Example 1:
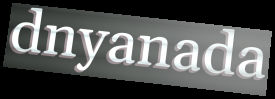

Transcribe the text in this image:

dnyanada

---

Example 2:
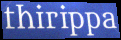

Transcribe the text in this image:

thirippa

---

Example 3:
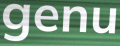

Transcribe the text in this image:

genu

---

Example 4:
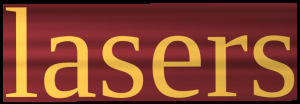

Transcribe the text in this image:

lasers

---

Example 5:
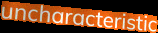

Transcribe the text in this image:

uncharacteristic